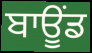
ਬਾਊਂਡ